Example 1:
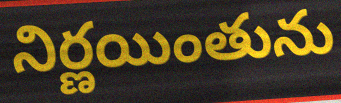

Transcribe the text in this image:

నిర్ణయింతును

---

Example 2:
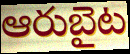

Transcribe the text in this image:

ఆరుబైట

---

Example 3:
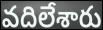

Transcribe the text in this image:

వదిలేశారు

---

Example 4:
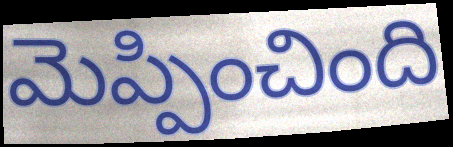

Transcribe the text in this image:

మెప్పించింది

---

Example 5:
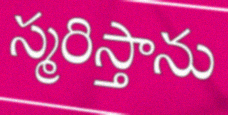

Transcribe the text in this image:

స్మరిస్తాను